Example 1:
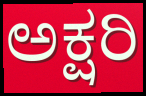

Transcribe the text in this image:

ಅಕ್ಷರಿ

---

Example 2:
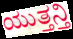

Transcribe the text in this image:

ಯುತ್ತನ್ತಿ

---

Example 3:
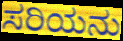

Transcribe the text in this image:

ಸರಿಯನು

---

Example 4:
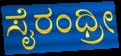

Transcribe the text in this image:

ಸೈರಂಧ್ರೀ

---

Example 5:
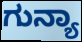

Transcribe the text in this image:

ಗುನ್ಯಾ